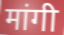
मांगी